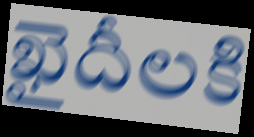
ఖైదీలకి